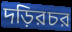
দড়িরচর